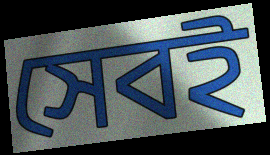
সেবই